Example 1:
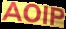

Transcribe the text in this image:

AOIP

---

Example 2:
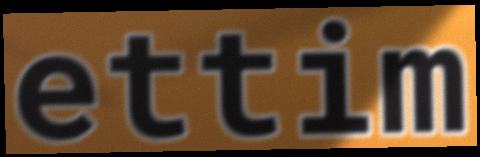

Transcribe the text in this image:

ettim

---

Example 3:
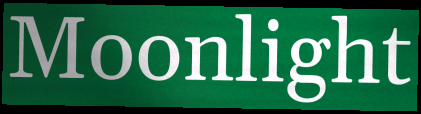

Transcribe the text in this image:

Moonlight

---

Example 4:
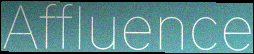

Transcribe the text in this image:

Affluence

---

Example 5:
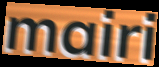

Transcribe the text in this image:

mairi